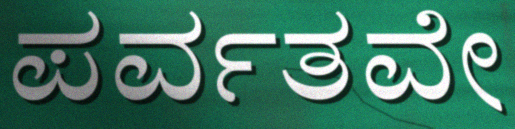
ಪರ್ವತವೇ